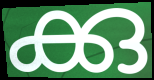
ക്കു